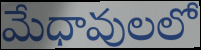
మేధావులలో